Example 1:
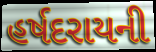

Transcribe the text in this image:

હર્ષદરાયની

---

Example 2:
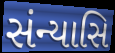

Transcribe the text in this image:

સંન્યાસિ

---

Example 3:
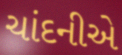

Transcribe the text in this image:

ચાંદનીએ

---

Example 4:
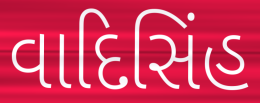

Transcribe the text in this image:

વાદિસિંહ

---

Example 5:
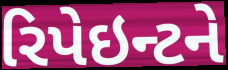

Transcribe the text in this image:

રિપેઇન્ટને